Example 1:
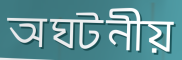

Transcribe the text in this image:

অঘটনীয়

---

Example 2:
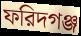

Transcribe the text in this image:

ফরিদগঞ্জ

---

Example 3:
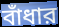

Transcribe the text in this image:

বাঁধার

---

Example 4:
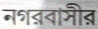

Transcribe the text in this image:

নগরবাসীর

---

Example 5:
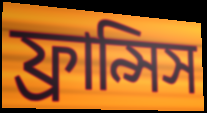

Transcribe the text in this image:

ফ্রান্সিস